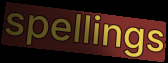
spellings